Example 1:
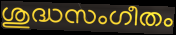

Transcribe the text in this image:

ശുദ്ധസംഗീതം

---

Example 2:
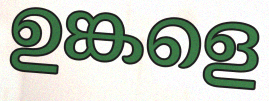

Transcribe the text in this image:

ഉങ്കളെ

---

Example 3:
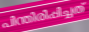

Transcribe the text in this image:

പിന്തിരിപ്പിച്ചത്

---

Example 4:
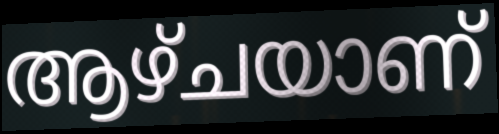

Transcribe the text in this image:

ആഴ്ചയാണ്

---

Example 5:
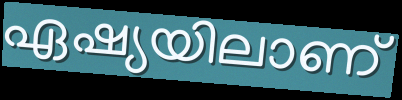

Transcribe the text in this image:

ഏഷ്യയിലാണ്